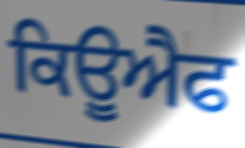
ਕਿਊਐਫ